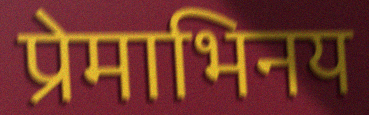
प्रेमाभिनय